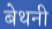
बेथनी